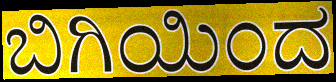
ಬಿಗಿಯಿಂದ